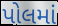
પોલમાં